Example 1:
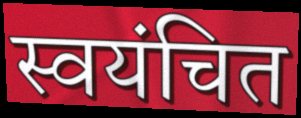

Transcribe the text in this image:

स्वयंचित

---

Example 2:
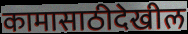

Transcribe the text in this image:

कामासाठीदेखील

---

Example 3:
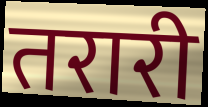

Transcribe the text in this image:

तरारी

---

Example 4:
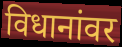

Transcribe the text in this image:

विधानांवर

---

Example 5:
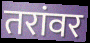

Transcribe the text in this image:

तरांवर